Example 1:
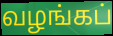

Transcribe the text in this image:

வழங்கப்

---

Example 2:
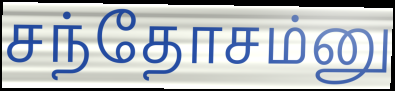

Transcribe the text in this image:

சந்தோசம்னு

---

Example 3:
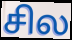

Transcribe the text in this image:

சில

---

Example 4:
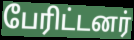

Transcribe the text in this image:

பேரிட்டனர்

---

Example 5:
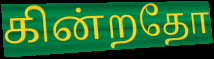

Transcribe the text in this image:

கின்றதோ